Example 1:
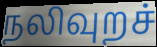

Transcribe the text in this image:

நலிவுறச்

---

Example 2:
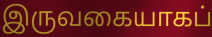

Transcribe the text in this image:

இருவகையாகப்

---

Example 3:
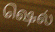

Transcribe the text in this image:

ஷெல்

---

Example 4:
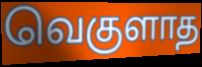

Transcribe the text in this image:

வெகுளாத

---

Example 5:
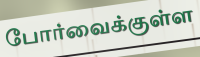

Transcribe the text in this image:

போர்வைக்குள்ள